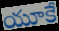
యూకే